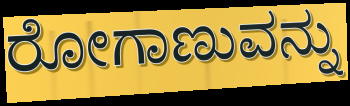
ರೋಗಾಣುವನ್ನು